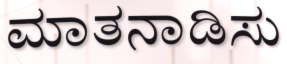
ಮಾತನಾಡಿಸು